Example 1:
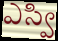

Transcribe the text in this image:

ఎస్వి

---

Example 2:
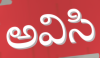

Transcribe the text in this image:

అవిసి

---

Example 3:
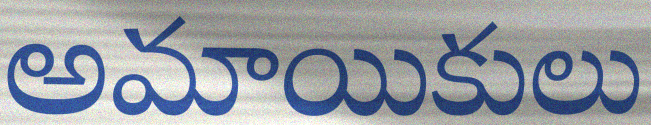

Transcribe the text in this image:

అమాయికులు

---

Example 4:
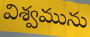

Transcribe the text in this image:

విశ్వమును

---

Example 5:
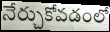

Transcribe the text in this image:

నేర్చుకోవడంలో